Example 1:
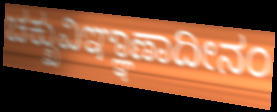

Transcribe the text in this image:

ಚಕ್ಖುವಿಞ್ಞಾಣಾದೀನಂ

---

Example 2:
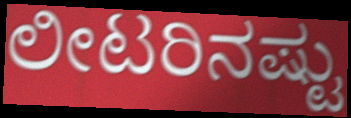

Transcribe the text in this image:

ಲೀಟರಿನಷ್ಟು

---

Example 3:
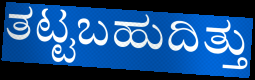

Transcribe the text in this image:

ತಟ್ಟಬಹುದಿತ್ತು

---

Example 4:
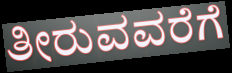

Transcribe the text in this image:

ತೀರುವವರೆಗೆ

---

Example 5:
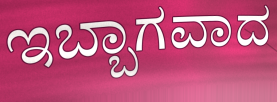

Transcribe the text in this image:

ಇಬ್ಬಾಗವಾದ